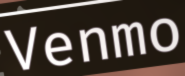
Venmo